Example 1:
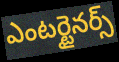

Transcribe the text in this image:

ఎంటర్టైనర్స్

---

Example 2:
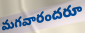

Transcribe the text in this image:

మగవారందరూ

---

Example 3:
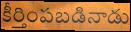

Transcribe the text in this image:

కీర్తింపబడినాడు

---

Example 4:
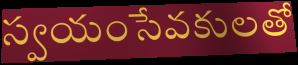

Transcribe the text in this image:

స్వయంసేవకులతో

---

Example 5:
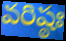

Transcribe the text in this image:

వరిష్ఠః